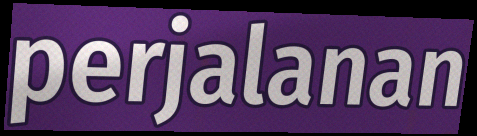
perjalanan